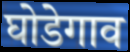
घोडेगाव